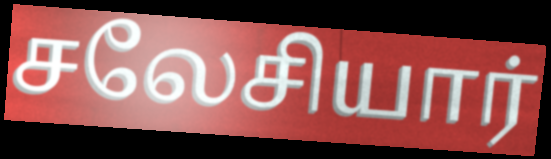
சலேசியார்